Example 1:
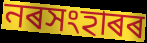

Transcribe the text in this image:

নৰসংহাৰৰ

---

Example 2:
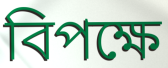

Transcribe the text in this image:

বিপক্ষে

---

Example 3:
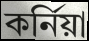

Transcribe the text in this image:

কৰ্নিয়া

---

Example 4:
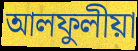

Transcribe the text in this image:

আলফুলীয়া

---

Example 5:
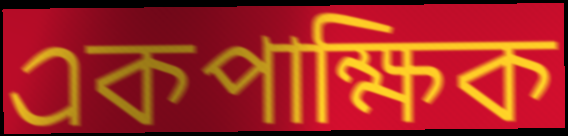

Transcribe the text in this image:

একপাক্ষিক